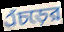
এঁচড়ের